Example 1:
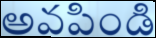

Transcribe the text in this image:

అవపిండి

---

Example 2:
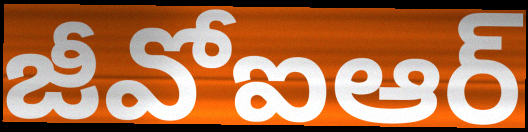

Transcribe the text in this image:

జీవోఐఆర్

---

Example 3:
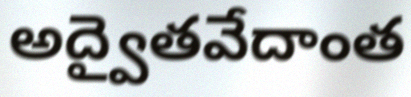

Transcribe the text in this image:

అద్వైతవేదాంత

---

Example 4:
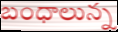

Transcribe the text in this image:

బంధాలున్న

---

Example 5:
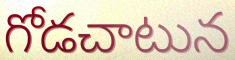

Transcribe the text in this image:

గోడచాటున